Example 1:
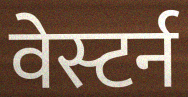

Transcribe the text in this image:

वेस्‍टर्न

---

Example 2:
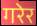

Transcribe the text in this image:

गरेर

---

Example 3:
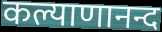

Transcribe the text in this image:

कल्याणानन्द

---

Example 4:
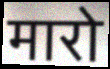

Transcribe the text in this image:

मारो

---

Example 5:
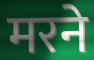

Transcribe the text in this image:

मरने